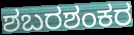
ಶಬರಶಂಕರ